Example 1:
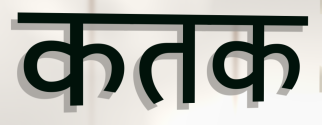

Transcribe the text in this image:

कतक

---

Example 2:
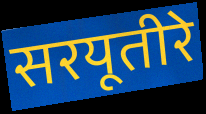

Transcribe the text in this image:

सरयूतीरे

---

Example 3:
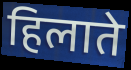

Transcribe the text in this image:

हिलाते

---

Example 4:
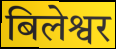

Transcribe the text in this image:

बिलेश्वर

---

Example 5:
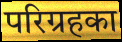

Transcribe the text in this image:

परिग्रहका